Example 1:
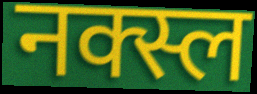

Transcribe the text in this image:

नक्स्ल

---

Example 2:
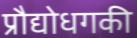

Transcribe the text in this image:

प्रौद्योधगकी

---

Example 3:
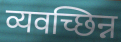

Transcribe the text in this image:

व्यवच्छिन्न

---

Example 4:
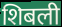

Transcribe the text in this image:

शिबली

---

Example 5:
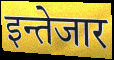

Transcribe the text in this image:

इन्तेजार